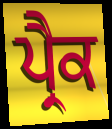
ਪ੍ਰੈਕ